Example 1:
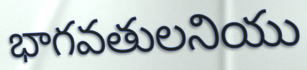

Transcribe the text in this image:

భాగవతులనియు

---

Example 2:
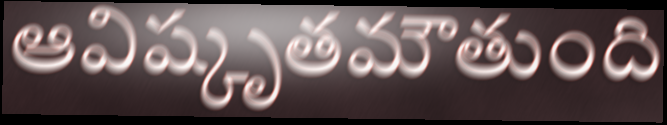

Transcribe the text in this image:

ఆవిష్కృతమౌతుంది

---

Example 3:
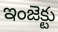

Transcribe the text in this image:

ఇంజెక్టు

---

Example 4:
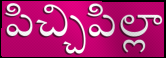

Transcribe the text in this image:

పిచ్చిపిల్లా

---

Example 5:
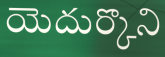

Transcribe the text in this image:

యెదుర్కొని